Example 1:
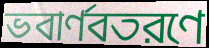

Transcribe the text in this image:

ভবার্ণবতরণে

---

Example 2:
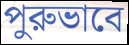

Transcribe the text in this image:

পুরুভাবে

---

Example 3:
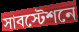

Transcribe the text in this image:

সাবস্টেশনে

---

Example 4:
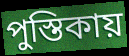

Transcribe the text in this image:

পুস্তিকায়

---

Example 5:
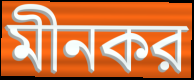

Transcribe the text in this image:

মীনকর